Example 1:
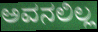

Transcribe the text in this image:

ಅವನಲಿಲ್ಲ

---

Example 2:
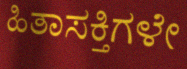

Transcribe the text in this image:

ಹಿತಾಸಕ್ತಿಗಳೇ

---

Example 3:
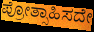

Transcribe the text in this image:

ಪ್ರೋತ್ಸಾಹಿಸದೇ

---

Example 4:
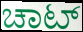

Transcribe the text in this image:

ಚಾಟ್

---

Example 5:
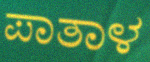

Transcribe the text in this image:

ಪಾತಾಳ